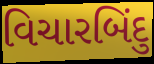
વિચારબિંદુ